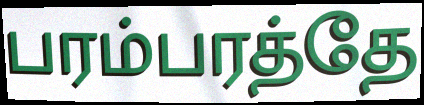
பரம்பரத்தே